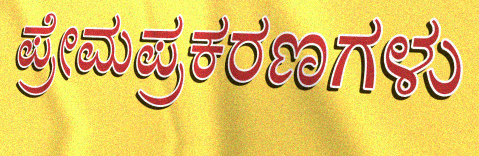
ಪ್ರೇಮಪ್ರಕರಣಗಳು